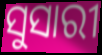
ସୁସାରୀ